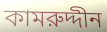
কামরুদ্দীন